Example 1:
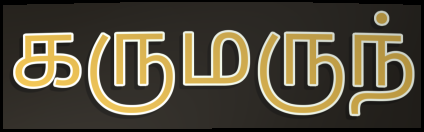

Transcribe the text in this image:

கருமருந்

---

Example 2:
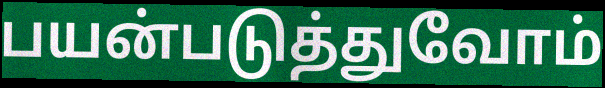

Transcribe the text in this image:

பயன்படுத்துவோம்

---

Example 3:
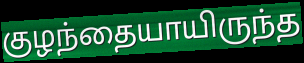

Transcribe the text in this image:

குழந்தையாயிருந்த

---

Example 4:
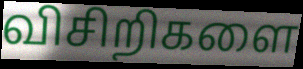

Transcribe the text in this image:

விசிறிகளை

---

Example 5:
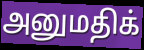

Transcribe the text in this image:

அனுமதிக்